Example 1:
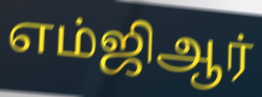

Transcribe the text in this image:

எம்ஜிஆர்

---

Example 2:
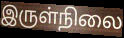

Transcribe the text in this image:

இருள்நிலை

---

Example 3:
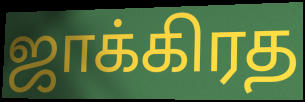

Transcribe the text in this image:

ஜாக்கிரத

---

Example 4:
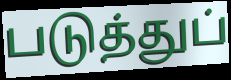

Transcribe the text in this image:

படுத்துப்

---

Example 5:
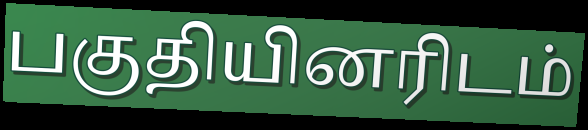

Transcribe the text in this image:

பகுதியினரிடம்